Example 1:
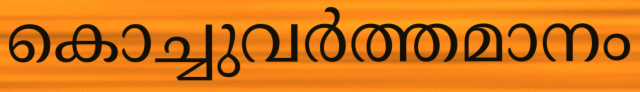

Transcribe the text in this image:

കൊച്ചുവർത്തമാനം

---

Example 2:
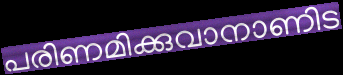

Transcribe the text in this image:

പരിണമിക്കുവാനാണിട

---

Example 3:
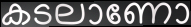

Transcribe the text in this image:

കടലാണോ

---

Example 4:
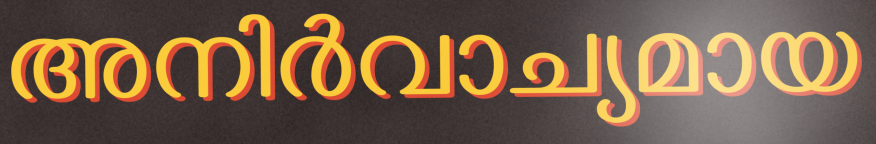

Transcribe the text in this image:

അനിർവാച്യമായ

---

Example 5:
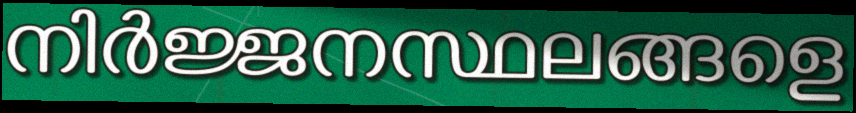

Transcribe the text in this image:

നിർജ്ജനസ്ഥലങ്ങളെ